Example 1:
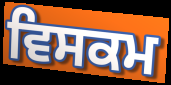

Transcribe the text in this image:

ਵਿਸਕਮ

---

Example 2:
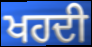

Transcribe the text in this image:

ਖਹਦੀ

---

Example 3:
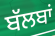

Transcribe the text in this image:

ਬੱਲਬਾਂ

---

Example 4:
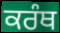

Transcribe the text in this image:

ਕਰੰਥ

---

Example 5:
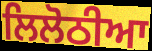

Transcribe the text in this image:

ਲਿਲੋਠੀਆ